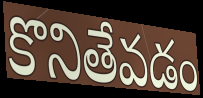
కొనితేవడం